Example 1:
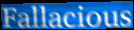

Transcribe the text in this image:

Fallacious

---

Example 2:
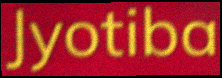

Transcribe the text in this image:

Jyotiba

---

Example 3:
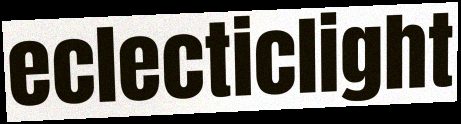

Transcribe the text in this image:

eclecticlight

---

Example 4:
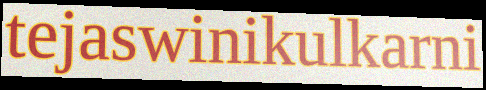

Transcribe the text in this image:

tejaswinikulkarni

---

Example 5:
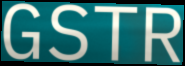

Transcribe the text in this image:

GSTR